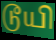
டூயி